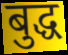
बुद्ध